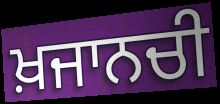
ਖ਼ਜਾਨਚੀ